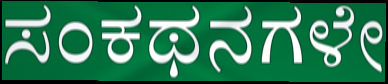
ಸಂಕಥನಗಳೇ